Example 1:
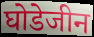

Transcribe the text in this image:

घोडेजीन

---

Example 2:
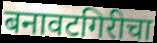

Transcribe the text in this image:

बनावटगिरीचा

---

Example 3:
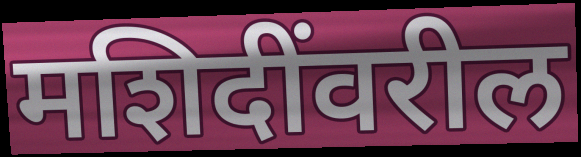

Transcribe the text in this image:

मशिदींवरील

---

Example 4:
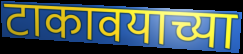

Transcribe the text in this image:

टाकावयाच्या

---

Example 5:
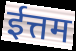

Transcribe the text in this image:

ईत्तम